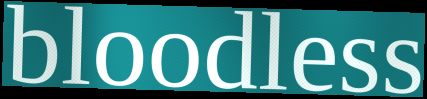
bloodless